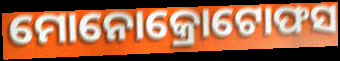
ମୋନୋକ୍ରୋଟୋଫସ